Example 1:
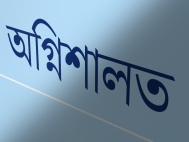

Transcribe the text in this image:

অগ্নিশালত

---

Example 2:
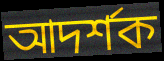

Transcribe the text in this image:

আদৰ্শক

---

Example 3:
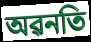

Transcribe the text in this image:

অৱনতি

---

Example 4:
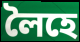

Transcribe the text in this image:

লৈহে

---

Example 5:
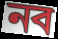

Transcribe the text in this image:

নব